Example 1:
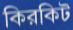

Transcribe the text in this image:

কিরকিট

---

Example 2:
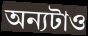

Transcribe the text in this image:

অন্যটাও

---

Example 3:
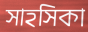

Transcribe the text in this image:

সাহসিকা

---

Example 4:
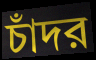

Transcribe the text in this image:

চাঁদর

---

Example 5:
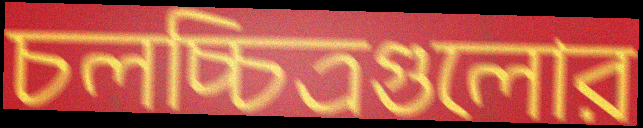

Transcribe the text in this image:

চলচ্চিত্রগুলোর